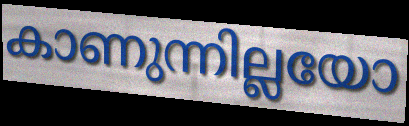
കാണുന്നില്ലയോ